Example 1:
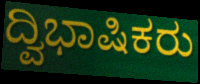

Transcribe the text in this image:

ದ್ವಿಭಾಷಿಕರು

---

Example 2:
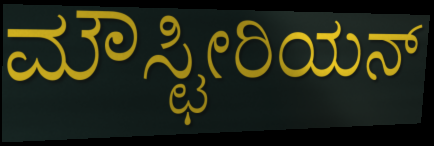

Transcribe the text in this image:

ಮೌಸ್ಟೀರಿಯನ್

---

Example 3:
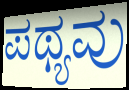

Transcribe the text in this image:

ಪಥ್ಯವು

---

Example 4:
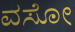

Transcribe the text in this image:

ವಸೋ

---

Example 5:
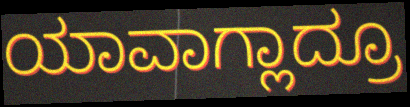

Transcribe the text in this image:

ಯಾವಾಗ್ಲಾದ್ರೂ